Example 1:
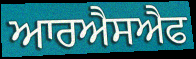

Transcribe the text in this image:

ਆਰਐਸਐਫ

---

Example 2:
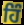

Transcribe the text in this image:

ਹਿੰ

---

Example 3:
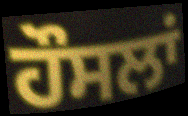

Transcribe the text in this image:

ਹੌਸਲਾਂ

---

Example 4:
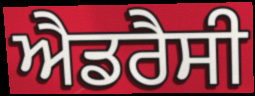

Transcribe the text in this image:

ਐਡਰੈਸੀ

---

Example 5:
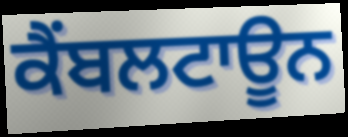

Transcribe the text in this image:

ਕੈਂਬਲਟਾਊਨ